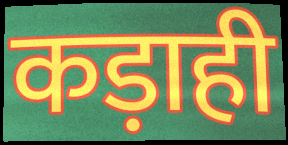
कड़ाही